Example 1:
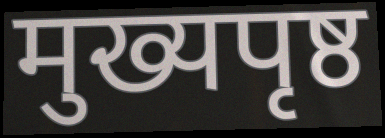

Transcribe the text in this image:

मुख्यपृष्ठ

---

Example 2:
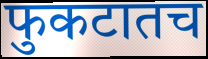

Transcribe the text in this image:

फुकटातच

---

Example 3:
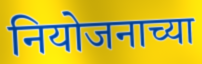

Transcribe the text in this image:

नियोजनाच्या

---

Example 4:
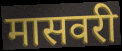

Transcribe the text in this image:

मासवरी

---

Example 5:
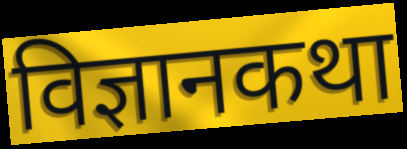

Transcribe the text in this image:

विज्ञानकथा